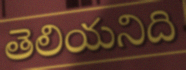
తెలియనిది